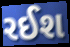
રઈશ